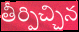
తీర్పిచ్చిన